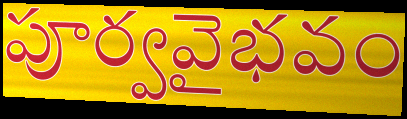
పూర్వవైభవం